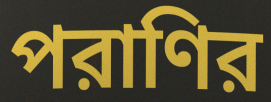
পরাণির